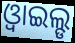
ଓ୍ବାଇଲ୍ଡ